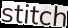
stitch